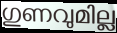
ഗുണവുമില്ല